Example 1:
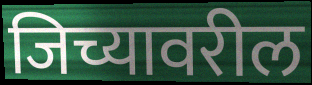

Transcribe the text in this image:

जिच्यावरील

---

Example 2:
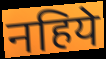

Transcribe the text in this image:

नहिये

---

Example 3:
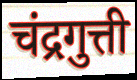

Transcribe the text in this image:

चंद्रगुत्ती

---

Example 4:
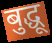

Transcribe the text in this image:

बुद्धू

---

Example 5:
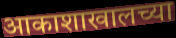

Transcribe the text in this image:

आकाशाखालच्या